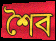
শৈব